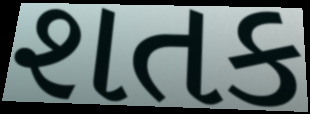
શતક